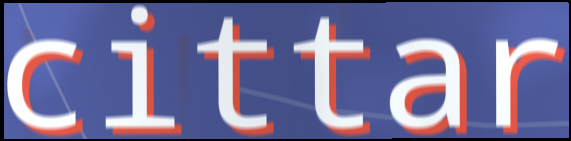
cittar